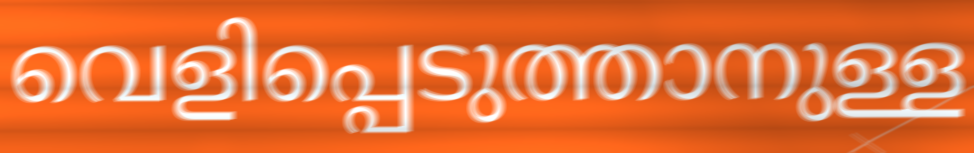
വെളിപ്പെടുത്താനുള്ള